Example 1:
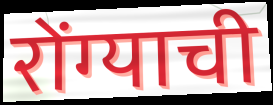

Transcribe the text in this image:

रोंग्याची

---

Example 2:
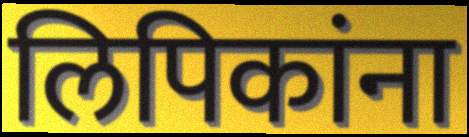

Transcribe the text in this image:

लिपिकांना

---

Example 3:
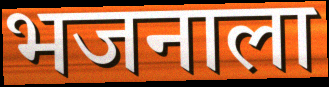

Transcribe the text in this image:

भजनाला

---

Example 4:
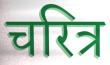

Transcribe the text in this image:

चरित्र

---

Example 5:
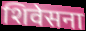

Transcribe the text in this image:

शिवेसना